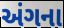
અંગના